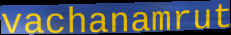
vachanamrut